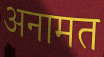
अनामत